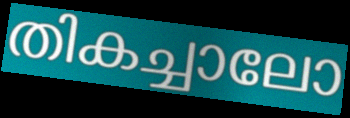
തികച്ചാലോ